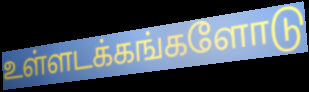
உள்ளடக்கங்களோடு